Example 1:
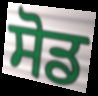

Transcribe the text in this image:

ਸੋਡ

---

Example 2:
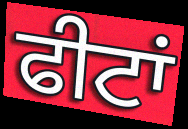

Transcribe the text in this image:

ਫੀਟਾਂ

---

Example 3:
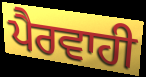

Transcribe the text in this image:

ਪੈਰਵਾਹੀ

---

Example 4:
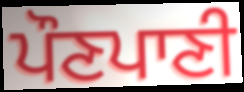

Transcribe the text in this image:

ਪੌਣਪਾਣੀ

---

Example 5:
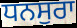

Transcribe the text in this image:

ਧਨਸੁਰਾ